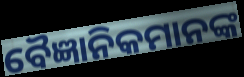
ବୈଜ୍ଞାନିକମାନଙ୍କ